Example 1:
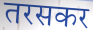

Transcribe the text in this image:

तरसकर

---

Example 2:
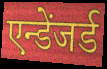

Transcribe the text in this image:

एन्डेंजर्ड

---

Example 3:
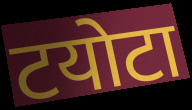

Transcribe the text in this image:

टयोटा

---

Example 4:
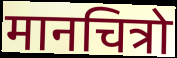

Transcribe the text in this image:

मानचित्रो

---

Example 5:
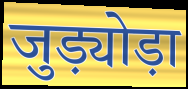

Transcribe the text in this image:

जुड़्योड़ा